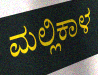
ಮಲ್ಲಿಕಾಳ